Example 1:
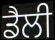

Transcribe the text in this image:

ਡੈਲੀ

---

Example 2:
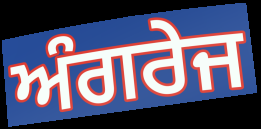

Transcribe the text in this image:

ਅੰਗਰੇਜ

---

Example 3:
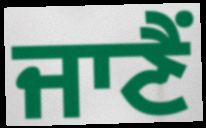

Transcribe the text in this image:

ਜਾਣੈਂ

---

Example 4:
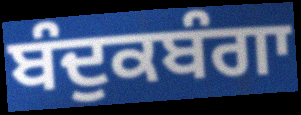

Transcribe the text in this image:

ਬੰਦੁਕਬੰਗਾ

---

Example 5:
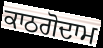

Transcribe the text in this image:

ਕਾਠਗੋਦਾਮ